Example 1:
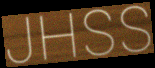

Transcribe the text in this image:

JHSS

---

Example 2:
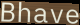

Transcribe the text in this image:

Bhave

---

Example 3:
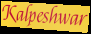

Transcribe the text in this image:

Kalpeshwar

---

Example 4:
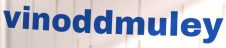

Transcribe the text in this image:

vinoddmuley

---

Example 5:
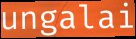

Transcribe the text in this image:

ungalai